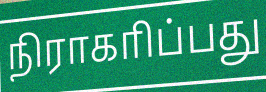
நிராகரிப்பது